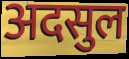
अदसुल